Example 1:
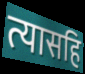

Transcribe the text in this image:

त्यासहि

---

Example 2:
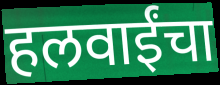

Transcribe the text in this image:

हलवाईंचा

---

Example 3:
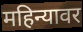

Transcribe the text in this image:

महिन्यावर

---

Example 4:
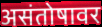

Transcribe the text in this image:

असंतोषावर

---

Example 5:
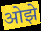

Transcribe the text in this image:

ओझे